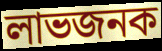
লাভজনক